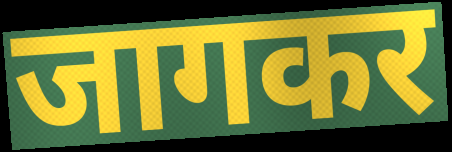
जागकर